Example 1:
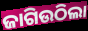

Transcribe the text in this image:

ଜାଗିଉଠିଲା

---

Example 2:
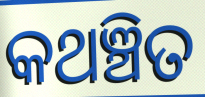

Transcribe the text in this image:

କଥଞ୍ଚିତ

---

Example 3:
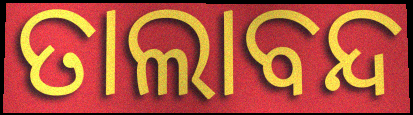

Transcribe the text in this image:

ତାଲାବନ୍ଦ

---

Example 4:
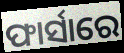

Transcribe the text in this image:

ଫାର୍ସାରେ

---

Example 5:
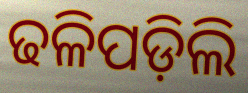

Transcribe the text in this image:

ଢଳିପଡ଼ିଲି